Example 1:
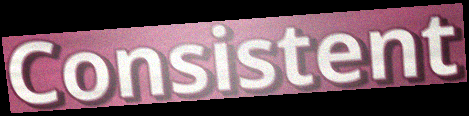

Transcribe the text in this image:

Consistent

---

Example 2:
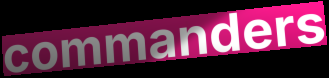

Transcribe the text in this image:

commanders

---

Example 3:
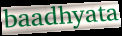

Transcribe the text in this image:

baadhyata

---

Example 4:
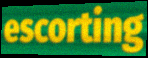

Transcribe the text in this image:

escorting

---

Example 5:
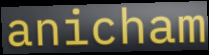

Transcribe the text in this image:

anicham